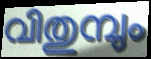
വിതുമ്പും